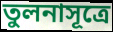
তুলনাসূত্রে